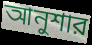
আনুশার